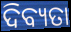
ଦିବ୍ୟତା